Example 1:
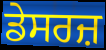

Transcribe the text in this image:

ਡੇਸਰਜ਼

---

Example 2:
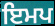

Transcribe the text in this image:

ਇਮਪ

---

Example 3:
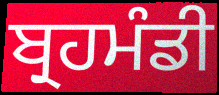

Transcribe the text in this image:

ਬ੍ਰਹਮੰਡੀ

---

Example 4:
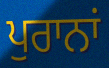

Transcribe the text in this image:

ਪੁਰਾਨਾਂ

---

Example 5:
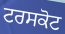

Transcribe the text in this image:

ਟਰਸਕੋਟ